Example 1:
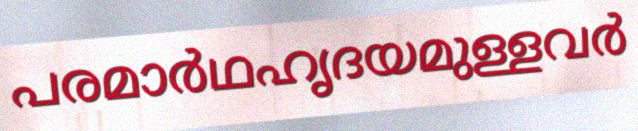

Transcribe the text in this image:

പരമാർഥഹൃദയമുള്ളവർ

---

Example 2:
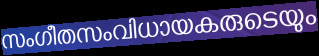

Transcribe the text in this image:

സംഗീതസംവിധായകരുടെയും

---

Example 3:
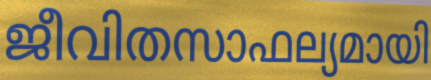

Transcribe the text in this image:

ജീവിതസാഫല്യമായി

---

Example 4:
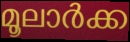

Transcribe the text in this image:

മൂലാർക്ക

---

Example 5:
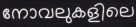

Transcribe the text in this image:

നോവലുകളിലെ